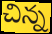
చిన్న